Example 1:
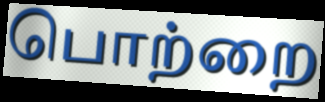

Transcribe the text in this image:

பொற்றை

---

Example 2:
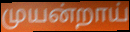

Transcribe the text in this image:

முயன்றாய்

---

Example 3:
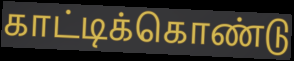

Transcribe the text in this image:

காட்டிக்கொண்டு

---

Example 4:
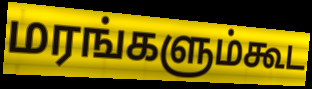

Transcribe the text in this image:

மரங்களும்கூட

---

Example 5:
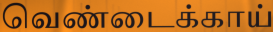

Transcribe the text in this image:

வெண்டைக்காய்